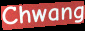
Chwang